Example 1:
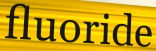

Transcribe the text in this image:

fluoride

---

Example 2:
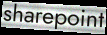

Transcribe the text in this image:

sharepoint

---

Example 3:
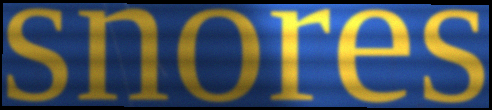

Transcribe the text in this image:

snores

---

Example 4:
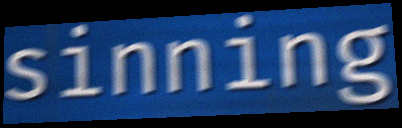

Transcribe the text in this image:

sinning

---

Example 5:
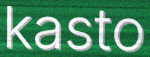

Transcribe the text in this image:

kasto